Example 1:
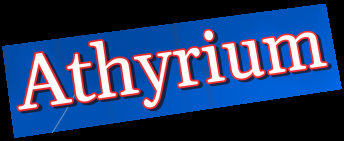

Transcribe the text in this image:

Athyrium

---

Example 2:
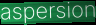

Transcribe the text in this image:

aspersion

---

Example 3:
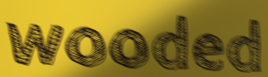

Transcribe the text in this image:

wooded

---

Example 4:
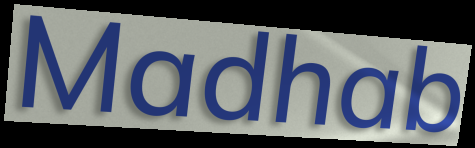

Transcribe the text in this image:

Madhab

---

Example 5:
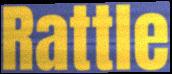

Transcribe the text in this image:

Rattle